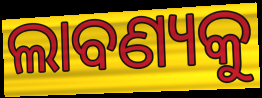
ଲାବଣ୍ୟକୁ